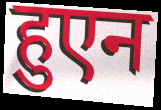
हुएन